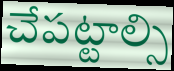
చేపట్టాల్సి